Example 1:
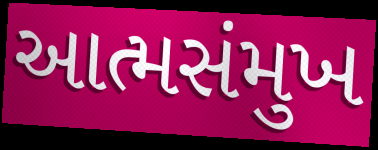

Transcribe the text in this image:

આત્મસંમુખ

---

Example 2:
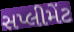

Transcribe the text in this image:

સપ્લીમેંટ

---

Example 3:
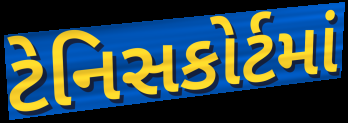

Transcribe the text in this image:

ટેનિસકોર્ટમાં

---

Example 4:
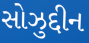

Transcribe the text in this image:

સોઝુદ્દીન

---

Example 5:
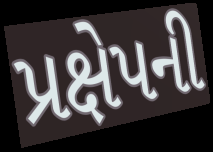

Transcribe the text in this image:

પ્રક્ષેપની